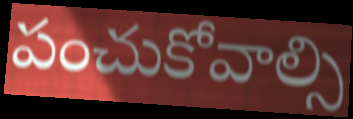
పంచుకోవాల్సి